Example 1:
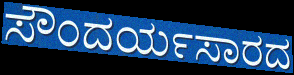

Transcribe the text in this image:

ಸೌಂದರ್ಯಸಾರದ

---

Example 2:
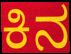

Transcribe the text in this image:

ಕಿನ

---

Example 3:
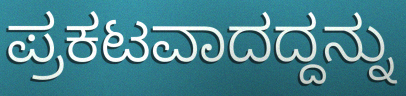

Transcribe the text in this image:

ಪ್ರಕಟವಾದದ್ದನ್ನು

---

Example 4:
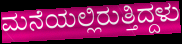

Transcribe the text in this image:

ಮನೆಯಲ್ಲಿರುತ್ತಿದ್ದಳು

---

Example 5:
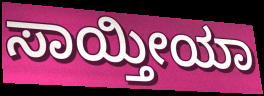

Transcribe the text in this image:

ಸಾಯ್ತೀಯಾ